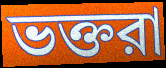
ভক্তরা